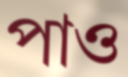
পাও